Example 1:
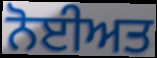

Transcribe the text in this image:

ਨੋਈਅਤ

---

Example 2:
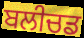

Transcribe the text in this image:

ਬਲੀਚਡ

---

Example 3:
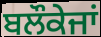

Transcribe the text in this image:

ਬਲੌਕੇਜਾਂ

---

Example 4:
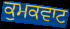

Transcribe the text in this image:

ਕੁਮਕਵਾਟ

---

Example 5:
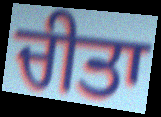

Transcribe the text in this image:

ਚੀਤਾ